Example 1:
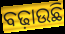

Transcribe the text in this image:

ବଢ଼ାଉଛି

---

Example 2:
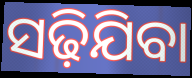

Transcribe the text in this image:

ସଢ଼ିଯିବା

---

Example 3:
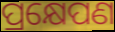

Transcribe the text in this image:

ପ୍ରକ୍ଷେପଣ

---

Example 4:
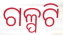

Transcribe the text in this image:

ଗଳ୍ପଟି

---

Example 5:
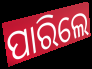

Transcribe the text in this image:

ପାରିଲେ